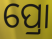
ପ୍ରୋ